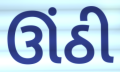
ઊંઠી